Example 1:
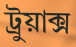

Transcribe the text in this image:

ট্রুয়াক্স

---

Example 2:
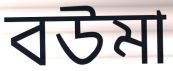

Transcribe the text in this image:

বউমা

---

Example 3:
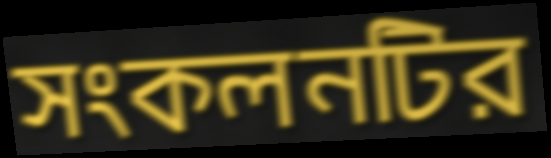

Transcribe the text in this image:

সংকলনটির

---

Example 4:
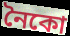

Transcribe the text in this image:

নৈকো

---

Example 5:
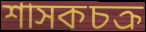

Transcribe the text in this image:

শাসকচক্র